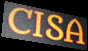
CISA